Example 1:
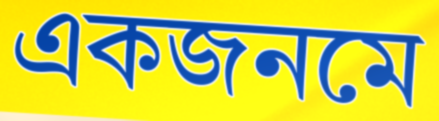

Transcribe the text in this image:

একজনমে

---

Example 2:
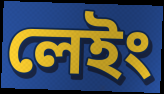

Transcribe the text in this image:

লেইং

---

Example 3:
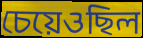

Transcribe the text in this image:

চেয়েওছিল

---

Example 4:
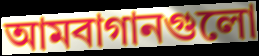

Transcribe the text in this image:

আমবাগানগুলো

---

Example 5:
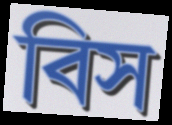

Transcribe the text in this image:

বিস